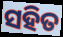
ସହିତ